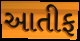
આતીફ